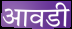
आवडी